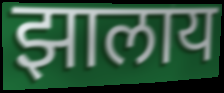
झालाय